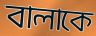
বালাকে